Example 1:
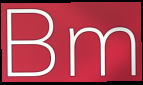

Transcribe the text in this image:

Bm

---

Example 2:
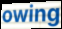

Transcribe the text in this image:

owing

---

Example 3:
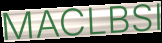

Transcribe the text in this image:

MACLBSI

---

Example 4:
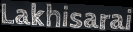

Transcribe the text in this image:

Lakhisarai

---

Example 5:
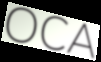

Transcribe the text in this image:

OCA